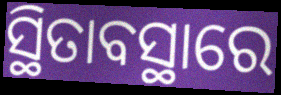
ସ୍ଥିତାବସ୍ଥାରେ